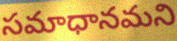
సమాధానమని